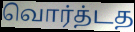
வொர்த்டத